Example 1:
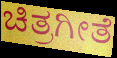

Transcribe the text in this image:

ಚಿತ್ರಗೀತೆ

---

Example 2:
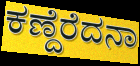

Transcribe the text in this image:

ಕಣ್ದೆರೆದನಾ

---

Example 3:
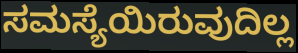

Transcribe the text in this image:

ಸಮಸ್ಯೆಯಿರುವುದಿಲ್ಲ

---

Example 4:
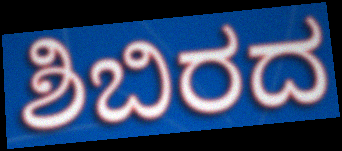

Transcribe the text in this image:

ಶಿಬಿರದ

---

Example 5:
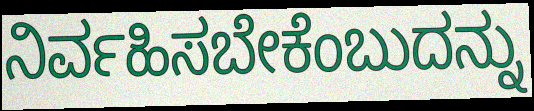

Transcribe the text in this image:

ನಿರ್ವಹಿಸಬೇಕೆಂಬುದನ್ನು